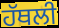
ਹੱਥਲੀ